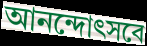
আনন্দোৎসবে